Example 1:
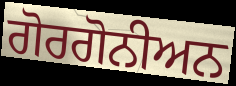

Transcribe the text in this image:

ਗੋਰਗੋਨੀਅਨ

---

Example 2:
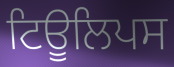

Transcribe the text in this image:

ਟਿਊਲਿਪਸ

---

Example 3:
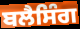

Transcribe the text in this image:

ਬਲੈਸਿੰਗ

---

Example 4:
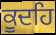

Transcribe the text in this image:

ਕੂਦਹਿ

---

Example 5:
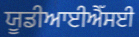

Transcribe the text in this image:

ਯੂਡੀਆਈਐੱਸਈ